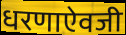
धरणाऐवजी